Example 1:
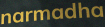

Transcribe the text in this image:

narmadha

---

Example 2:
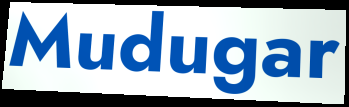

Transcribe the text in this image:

Mudugar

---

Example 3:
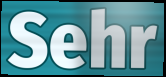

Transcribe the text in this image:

Sehr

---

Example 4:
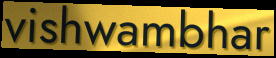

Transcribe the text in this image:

vishwambhar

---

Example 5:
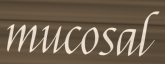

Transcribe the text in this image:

mucosal